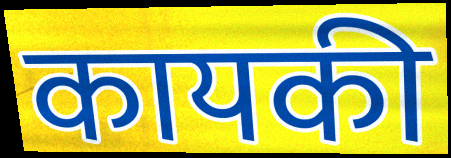
कायकी